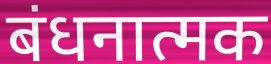
बंधनात्मक